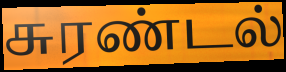
சுரண்டல்